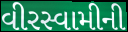
વીરસ્વામીની